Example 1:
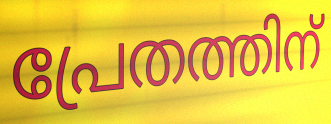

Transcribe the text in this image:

പ്രേതത്തിന്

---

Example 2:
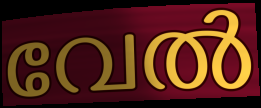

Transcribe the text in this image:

വേൽ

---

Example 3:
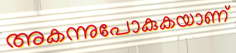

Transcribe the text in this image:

അകന്നുപോകുകയാണ്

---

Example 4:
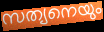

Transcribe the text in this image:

സത്യനെയും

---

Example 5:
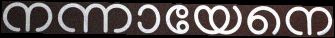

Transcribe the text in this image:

നന്നായേനെ